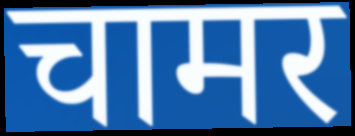
चामर